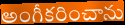
అంగీకరించాను